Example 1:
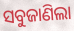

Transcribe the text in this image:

ସବୁଜାଣିଲା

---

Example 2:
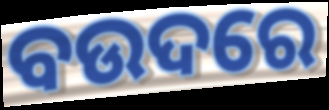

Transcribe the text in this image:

ବଉଦରେ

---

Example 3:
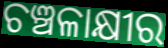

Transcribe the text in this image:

ଚଞ୍ଚଳାକ୍ଷୀର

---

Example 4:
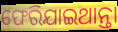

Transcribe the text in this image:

ଫେରିଯାଇଥାନ୍ତା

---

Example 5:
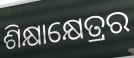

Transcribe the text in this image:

ଶିକ୍ଷାକ୍ଷେତ୍ରର